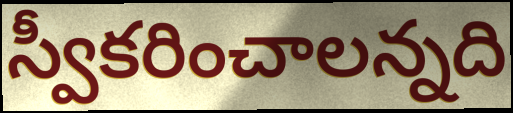
స్వీకరించాలన్నది